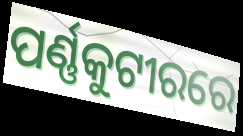
ପର୍ଣ୍ଣକୁଟୀରରେ